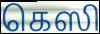
கெஸி